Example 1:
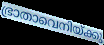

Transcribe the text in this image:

ഭ്രാതാവെനിയ്ക്കു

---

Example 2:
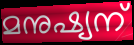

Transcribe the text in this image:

മനുഷ്യന്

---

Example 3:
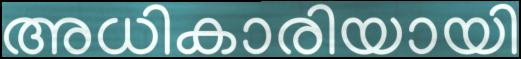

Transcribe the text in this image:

അധികാരിയായി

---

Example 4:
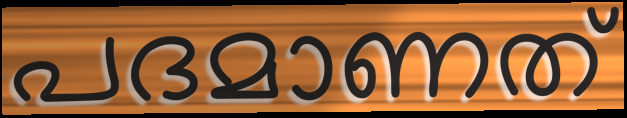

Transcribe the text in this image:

പദമാണത്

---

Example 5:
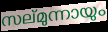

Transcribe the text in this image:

സല്മുന്നായും